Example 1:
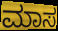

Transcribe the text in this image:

ಮಾಸ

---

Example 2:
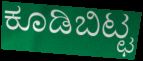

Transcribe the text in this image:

ಕೂಡಿಬಿಟ್ಟ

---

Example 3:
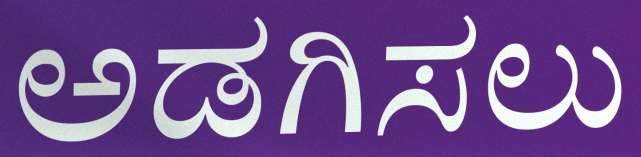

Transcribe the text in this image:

ಅಡಗಿಸಲು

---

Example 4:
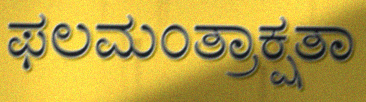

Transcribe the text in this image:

ಫಲಮಂತ್ರಾಕ್ಷತಾ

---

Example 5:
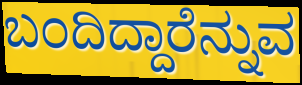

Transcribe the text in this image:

ಬಂದಿದ್ದಾರೆನ್ನುವ